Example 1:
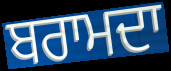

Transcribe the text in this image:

ਬਰਾਮਦਾ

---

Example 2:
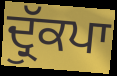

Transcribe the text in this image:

ਦ੍ਰੁੱਕਪਾ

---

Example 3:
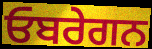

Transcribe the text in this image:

ਓਬਰੇਗਨ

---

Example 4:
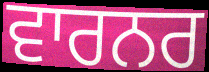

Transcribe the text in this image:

ਵਾਰਨਰ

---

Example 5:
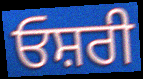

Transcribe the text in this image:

ਓਸ਼ਰੀ